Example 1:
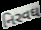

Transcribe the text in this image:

નિરવઘ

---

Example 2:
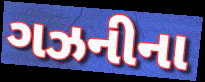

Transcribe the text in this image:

ગઝનીના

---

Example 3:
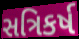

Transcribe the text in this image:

સત્રિકર્ષ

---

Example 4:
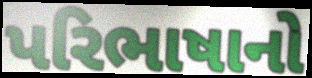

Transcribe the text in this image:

પરિભાષાનો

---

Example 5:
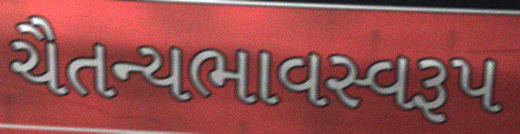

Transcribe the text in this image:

ચૈતન્યભાવસ્વરૂપ